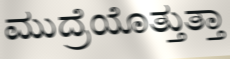
ಮುದ್ರೆಯೊತ್ತುತ್ತಾ